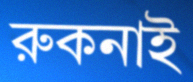
রুকনাই